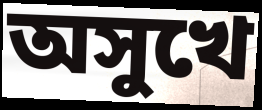
অসুখে